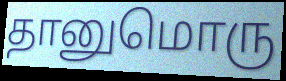
தானுமொரு